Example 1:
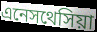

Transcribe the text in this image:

এনেসথেসিয়া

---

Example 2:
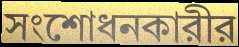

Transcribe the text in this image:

সংশোধনকারীর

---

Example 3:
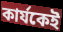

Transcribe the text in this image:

কার্যকেই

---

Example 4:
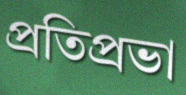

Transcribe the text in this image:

প্রতিপ্রভা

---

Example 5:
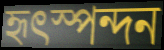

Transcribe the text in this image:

হৃৎস্পন্দন